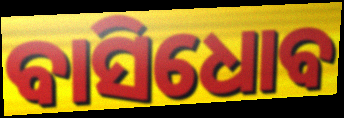
ବାସିଧୋବ